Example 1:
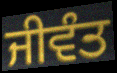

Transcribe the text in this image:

ਜੀਵੰਤ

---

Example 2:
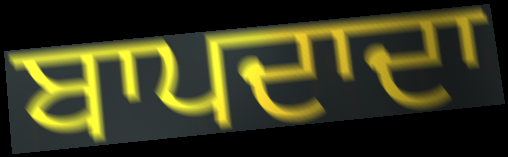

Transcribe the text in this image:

ਬਾਪਦਾਦਾ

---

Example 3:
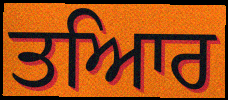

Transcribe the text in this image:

ਤਆਿਰ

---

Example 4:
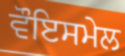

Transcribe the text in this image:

ਵੌਇਸਮੇਲ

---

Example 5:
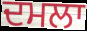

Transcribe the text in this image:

ਦਮਲਾ